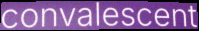
convalescent